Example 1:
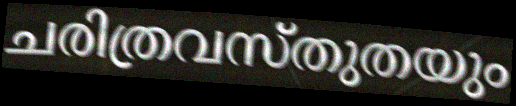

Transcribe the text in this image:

ചരിത്രവസ്തുതയും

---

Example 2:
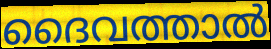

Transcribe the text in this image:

ദൈവത്താൽ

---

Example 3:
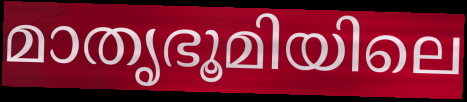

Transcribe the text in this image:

മാതൃഭൂമിയിലെ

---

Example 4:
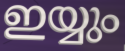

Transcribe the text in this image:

ഇയ്യും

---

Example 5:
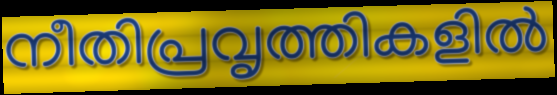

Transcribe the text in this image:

നീതിപ്രവൃത്തികളിൽ